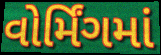
વોર્મિંગમાં